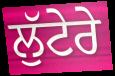
ਲੁੱਟੇਰੇ